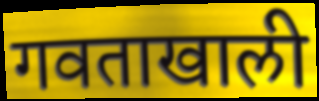
गवताखाली